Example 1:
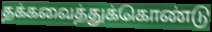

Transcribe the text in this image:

தக்கவைத்துக்கொண்டு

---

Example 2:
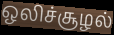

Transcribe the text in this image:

ஒலிச்சூழல்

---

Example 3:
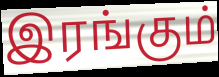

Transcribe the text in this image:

இரங்கும்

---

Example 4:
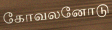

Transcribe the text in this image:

கோவலனோடு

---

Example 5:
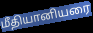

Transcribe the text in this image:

மீதியானியரை